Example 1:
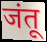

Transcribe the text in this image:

जंतू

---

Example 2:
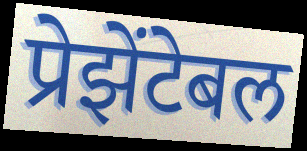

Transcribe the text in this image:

प्रेझेंटेबल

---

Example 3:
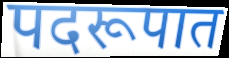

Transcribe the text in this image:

पदरूपात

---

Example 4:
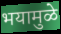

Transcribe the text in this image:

भयामुळे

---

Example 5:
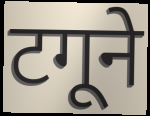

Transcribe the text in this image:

टगूने